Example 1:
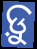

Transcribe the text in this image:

ଡ଼ୁ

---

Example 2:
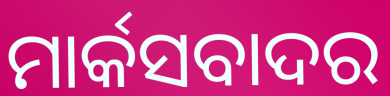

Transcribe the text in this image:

ମାର୍କସବାଦର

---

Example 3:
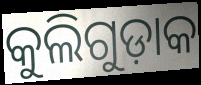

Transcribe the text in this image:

କୁଲିଗୁଡ଼ାକ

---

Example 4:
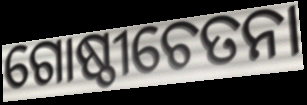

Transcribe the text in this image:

ଗୋଷ୍ଠୀଚେତନା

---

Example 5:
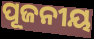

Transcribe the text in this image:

ପୂଜନୀୟ